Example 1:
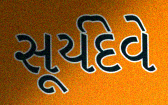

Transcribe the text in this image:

સૂર્યદેવે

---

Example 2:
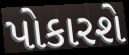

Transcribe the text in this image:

પોકારશે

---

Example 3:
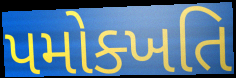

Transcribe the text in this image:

પમોક્ખતિ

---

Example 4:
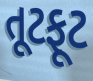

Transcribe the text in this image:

તૂટફૂટ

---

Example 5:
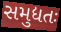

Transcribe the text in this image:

સમુદ્યતઃ